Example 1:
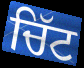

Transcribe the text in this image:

ਚਿੱਟ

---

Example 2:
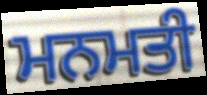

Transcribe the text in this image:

ਮਨਮਤੀ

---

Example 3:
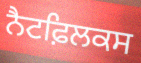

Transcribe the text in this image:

ਨੈਟਫ਼ਿਲਕਸ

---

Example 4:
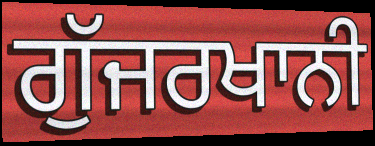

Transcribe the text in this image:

ਗੁੱਜਰਖਾਨੀ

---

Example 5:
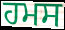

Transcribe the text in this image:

ਹਮਸ